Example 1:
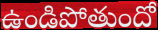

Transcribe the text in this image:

ఉండిపోతుందో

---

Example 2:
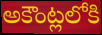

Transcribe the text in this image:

అకౌంట్లలోకి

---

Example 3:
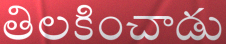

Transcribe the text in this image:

తిలకించాడు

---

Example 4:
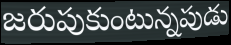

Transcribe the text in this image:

జరుపుకుంటున్నపుడు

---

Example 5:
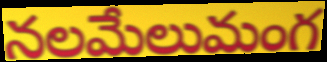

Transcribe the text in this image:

నలమేలుమంగ